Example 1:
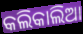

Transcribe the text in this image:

କଲିକାଲିଆ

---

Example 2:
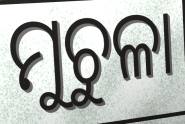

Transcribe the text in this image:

ମୁଚୁଳା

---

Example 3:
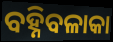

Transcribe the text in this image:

ବହ୍ନିବଳାକା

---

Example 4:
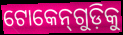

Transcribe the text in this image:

ଟୋକେନ୍‌ଗୁଡ଼ିକୁ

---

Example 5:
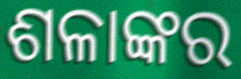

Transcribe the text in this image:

ଶଳାଙ୍କର